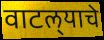
वाटल्याचे